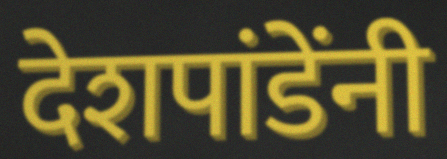
देशपांडेंनी